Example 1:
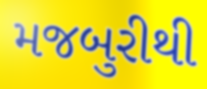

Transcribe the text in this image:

મજબુરીથી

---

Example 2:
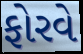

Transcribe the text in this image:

ફોરવે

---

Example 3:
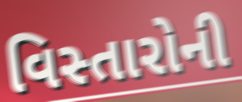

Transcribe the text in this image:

વિસ્તારોની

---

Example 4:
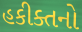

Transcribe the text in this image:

હકીક્તનો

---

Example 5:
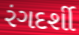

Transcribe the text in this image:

રંગદર્શી